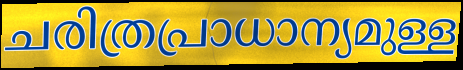
ചരിത്രപ്രാധാന്യമുള്ള